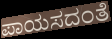
ಪಾಯಸದಂತೆ